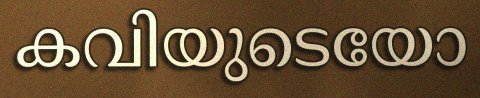
കവിയുടെയോ